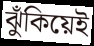
ঝুঁকিয়েই